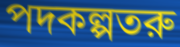
পদকল্পতরু